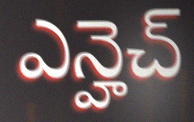
ఎన్హెచ్